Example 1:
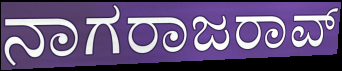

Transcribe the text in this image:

ನಾಗರಾಜರಾವ್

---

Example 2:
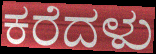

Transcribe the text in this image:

ಕರೆದಳು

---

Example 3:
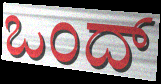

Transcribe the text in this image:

ಒಂದ್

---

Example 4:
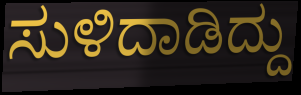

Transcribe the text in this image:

ಸುಳಿದಾಡಿದ್ದು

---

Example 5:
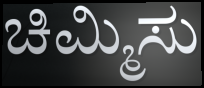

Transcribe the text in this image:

ಚಿಮ್ಮಿಸು